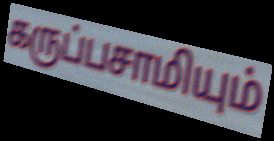
கருப்பசாமியும்